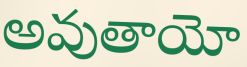
అవుతాయో